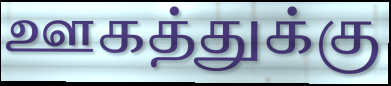
ஊகத்துக்கு